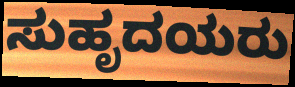
ಸುಹೃದಯರು